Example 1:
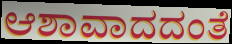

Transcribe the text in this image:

ಆಶಾವಾದದಂತೆ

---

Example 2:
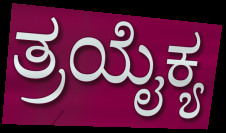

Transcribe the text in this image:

ತ್ರಯೈಕ್ಯ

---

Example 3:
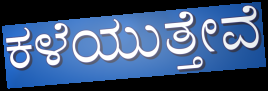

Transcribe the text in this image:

ಕಳೆಯುತ್ತೇವೆ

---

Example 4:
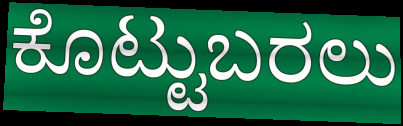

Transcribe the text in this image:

ಕೊಟ್ಟುಬರಲು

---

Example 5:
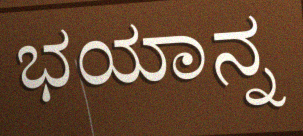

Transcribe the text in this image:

ಭಯಾನ್ನ